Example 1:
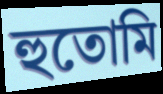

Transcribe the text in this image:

হুতোমি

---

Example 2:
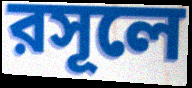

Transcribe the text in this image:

রসূলে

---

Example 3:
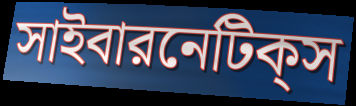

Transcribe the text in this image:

সাইবারনেটিক্‌স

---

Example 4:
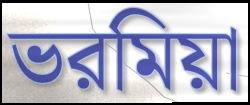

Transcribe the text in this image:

ভরমিয়া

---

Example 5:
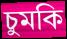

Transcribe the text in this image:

চুমকি